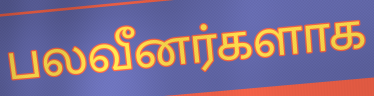
பலவீனர்களாக